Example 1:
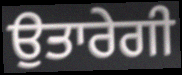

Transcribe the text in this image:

ਉਤਾਰੇਗੀ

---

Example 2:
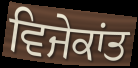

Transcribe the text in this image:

ਵਿਜੇਕਾਂਤ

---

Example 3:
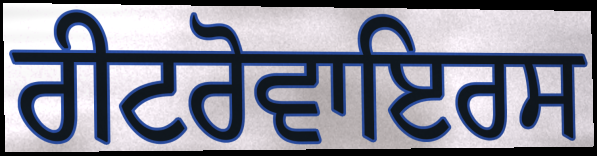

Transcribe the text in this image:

ਰੀਟਰੋਵਾਇਰਸ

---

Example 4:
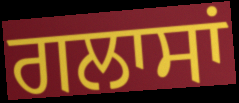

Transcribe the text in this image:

ਗਲਾਸਾਂ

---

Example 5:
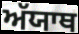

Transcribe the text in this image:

ਅੱਯਾਥ